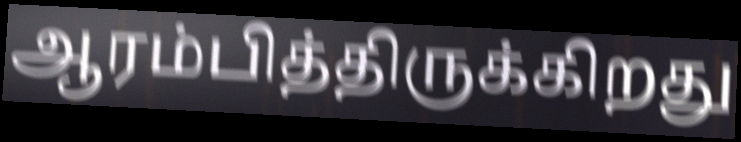
ஆரம்பித்திருக்கிறது